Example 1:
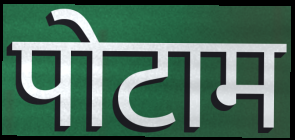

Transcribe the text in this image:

पोटाम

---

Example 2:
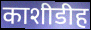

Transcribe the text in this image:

काशीडीह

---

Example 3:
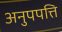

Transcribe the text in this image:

अनुपपत्ति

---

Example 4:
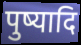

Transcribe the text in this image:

पुष्यादि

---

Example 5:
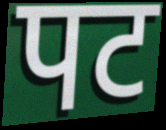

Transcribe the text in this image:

पट